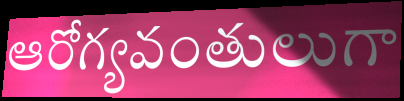
ఆరోగ్యవంతులుగా